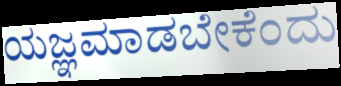
ಯಜ್ಞಮಾಡಬೇಕೆಂದು